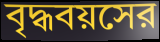
বৃদ্ধবয়সের